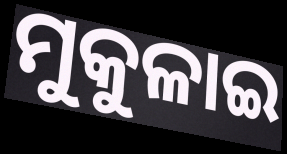
ମୁକୁଳାଇ